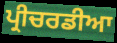
ਪ੍ਰੀਚਰਡੀਆ